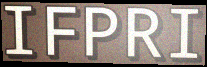
IFPRI